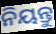
ନିୟନ୍ତୁ